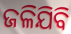
ଜଳିଯିବି